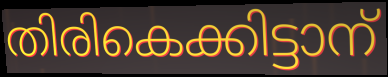
തിരികെക്കിട്ടാന്